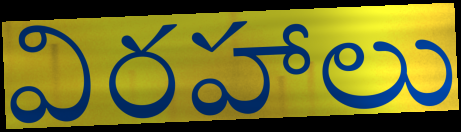
విరహాలు